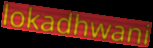
lokadhwani